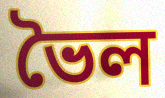
ভৈল